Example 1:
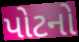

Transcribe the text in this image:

પોટનો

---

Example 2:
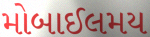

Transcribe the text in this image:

મોબાઈલમય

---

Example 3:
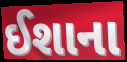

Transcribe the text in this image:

ઈશાના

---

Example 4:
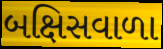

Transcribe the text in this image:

બક્ષિસવાળા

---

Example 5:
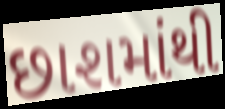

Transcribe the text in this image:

છાશમાંથી